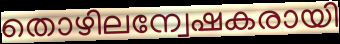
തൊഴിലന്വേഷകരായി